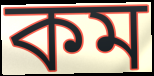
কম